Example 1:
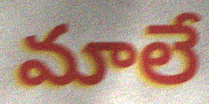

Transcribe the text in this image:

మాలే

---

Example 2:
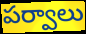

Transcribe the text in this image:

పర్వాలు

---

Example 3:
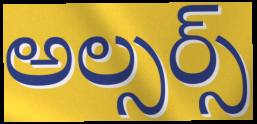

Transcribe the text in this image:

అల్సర్స్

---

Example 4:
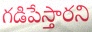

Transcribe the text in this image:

గడిపేస్తారని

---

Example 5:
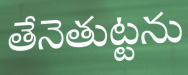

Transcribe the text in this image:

తేనెతుట్టను